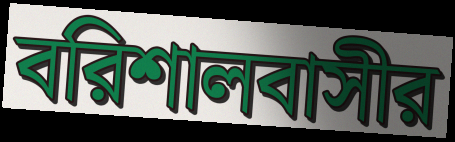
বরিশালবাসীর